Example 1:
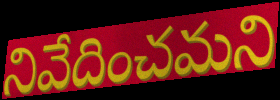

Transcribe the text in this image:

నివేదించమని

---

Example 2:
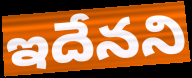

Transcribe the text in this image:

ఇదేనని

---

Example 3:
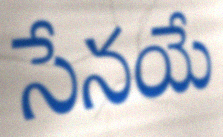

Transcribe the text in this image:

సేనయే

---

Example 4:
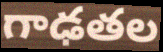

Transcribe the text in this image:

గాఢతల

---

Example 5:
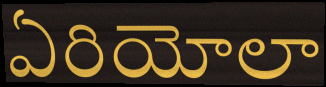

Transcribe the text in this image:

ఏరియోలా